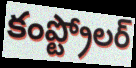
కంప్ట్రోలర్